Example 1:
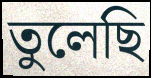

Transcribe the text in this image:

তুলেছি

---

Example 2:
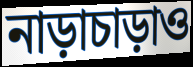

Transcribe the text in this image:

নাড়াচাড়াও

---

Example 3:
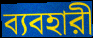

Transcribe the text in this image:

ব্যবহারী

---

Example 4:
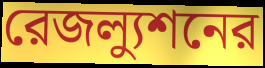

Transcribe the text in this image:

রেজল্যুশনের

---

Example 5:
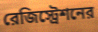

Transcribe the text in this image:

রেজিস্ট্রেশনের